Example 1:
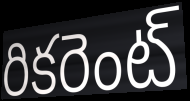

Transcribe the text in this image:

రికరెంట్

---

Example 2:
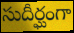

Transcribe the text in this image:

సుదీర్ఘంగా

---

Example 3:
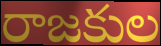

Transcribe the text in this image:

రాజకుల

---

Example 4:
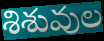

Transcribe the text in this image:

శిశువుల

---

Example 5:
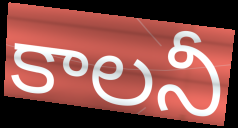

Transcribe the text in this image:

కాలనీ